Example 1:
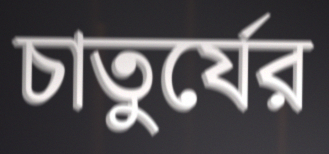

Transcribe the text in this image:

চাতুর্যের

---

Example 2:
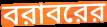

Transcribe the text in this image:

বরাবরের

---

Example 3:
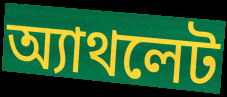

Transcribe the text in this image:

অ্যাথলেট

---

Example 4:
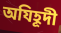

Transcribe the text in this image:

অযিহূদী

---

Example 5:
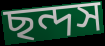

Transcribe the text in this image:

ছন্দস